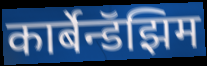
कार्बेन्डॅझिम